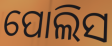
ପୋଲିସ